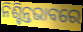
ନିଶ୍ଚିନ୍ତଭାବରେ